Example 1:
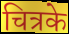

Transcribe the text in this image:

चित्रके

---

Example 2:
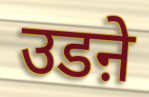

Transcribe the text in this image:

उडऩे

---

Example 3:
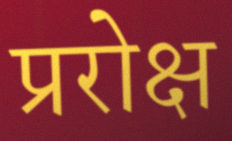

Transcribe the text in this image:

प्ररोक्ष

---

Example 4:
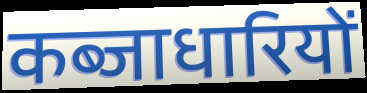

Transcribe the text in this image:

कब्जाधारियों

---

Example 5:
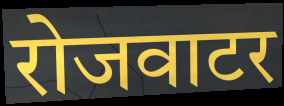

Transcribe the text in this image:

रोजवाटर